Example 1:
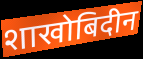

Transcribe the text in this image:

शाखोबिदीन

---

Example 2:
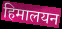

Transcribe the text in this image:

हिमालयन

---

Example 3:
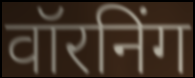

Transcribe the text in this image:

वॉरनिंग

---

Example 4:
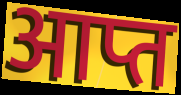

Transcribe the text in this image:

आप्त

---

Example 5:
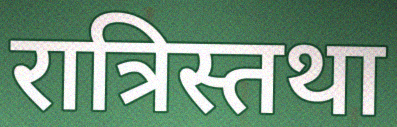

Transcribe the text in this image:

रात्रिस्तथा